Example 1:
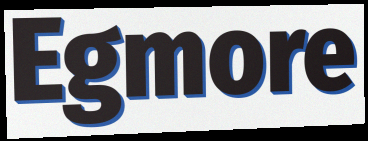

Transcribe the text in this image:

Egmore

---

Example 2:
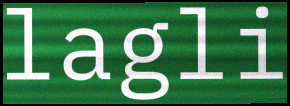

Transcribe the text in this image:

lagli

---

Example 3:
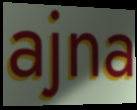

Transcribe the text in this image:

ajna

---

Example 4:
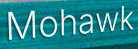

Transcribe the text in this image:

Mohawk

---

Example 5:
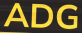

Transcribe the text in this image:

ADG